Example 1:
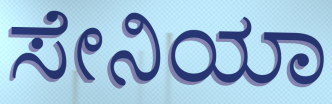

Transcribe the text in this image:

ಸೇನಿಯಾ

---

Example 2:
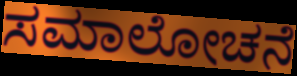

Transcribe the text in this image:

ಸಮಾಲೋಚನೆ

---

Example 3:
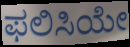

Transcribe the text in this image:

ಫಲಿಸಿಯೇ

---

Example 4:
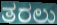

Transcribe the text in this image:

ತರಲು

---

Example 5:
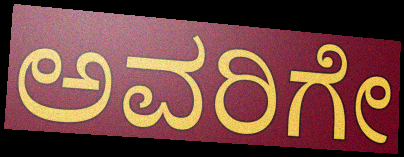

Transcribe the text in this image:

ಅವರಿಗೇ